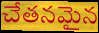
చేతనమైన